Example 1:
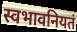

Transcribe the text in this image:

स्वभावनियतं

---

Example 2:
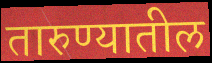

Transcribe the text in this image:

तारुण्यातील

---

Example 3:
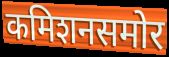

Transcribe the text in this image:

कमिशनसमोर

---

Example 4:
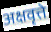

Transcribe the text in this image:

अक्षवृत्ते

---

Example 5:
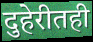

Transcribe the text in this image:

दुहेरीतही